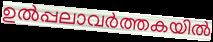
ഉൽപ്പലാവർത്തകയിൽ